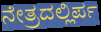
ನೇತ್ರದಲ್ಲಿರ್ಪ